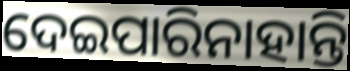
ଦେଇପାରିନାହାନ୍ତି